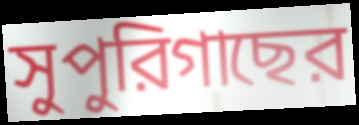
সুপুরিগাছের